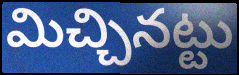
మిచ్చినట్టు